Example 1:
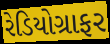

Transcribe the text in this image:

રેડિયોગ્રાફર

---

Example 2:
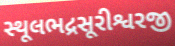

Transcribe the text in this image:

સ્થૂલભદ્રસૂરીશ્વરજી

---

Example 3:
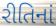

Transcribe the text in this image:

રીતિનાં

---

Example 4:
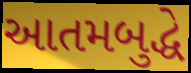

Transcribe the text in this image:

આતમબુદ્ધે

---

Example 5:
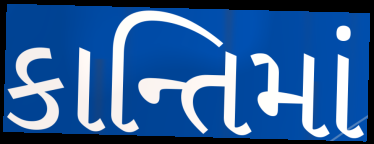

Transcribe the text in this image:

કાન્તિમાં